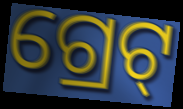
ଗ୍ରେଟ୍